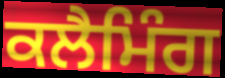
ਕਲੈਮਿੰਗ